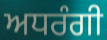
ਅਧਰੰਗੀ